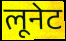
लूनेट